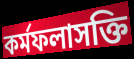
কর্মফলাসক্তি